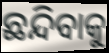
ଛନ୍ଦିବାକୁ